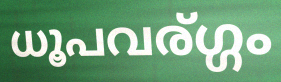
ധൂപവര്ഗ്ഗം